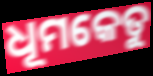
ଧୂମକେତୁ